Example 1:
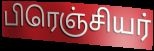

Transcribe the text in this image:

பிரெஞ்சியர்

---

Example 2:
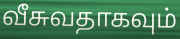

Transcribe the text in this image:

வீசுவதாகவும்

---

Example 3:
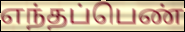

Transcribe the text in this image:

எந்தப்பெண்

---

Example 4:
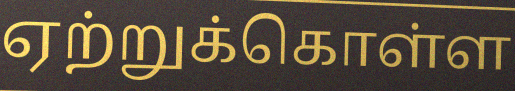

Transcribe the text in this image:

ஏற்றுக்கொள்ள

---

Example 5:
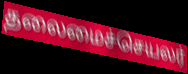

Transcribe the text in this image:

தலைமைச்செயலர்